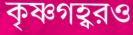
কৃষ্ণগহ্বরও